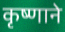
कृष्णाने